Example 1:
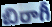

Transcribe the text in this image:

బిరాగీ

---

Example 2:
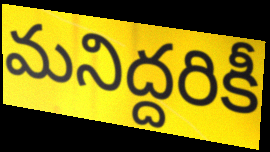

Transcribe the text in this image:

మనిద్దరికీ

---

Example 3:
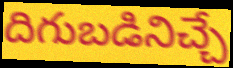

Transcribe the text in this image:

దిగుబడినిచ్చే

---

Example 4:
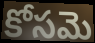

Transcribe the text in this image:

కోసమె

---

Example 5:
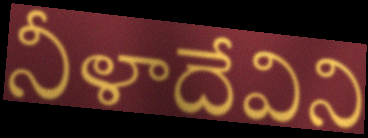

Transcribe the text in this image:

నీళాదేవిని